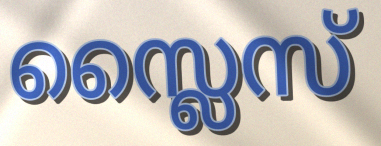
സ്ലൈസ്